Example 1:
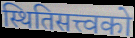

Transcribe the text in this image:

स्थितिसत्त्वको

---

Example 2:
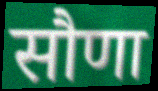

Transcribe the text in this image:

सौणा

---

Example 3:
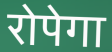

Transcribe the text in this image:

रोपेगा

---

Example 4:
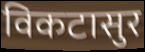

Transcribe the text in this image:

विकटासुर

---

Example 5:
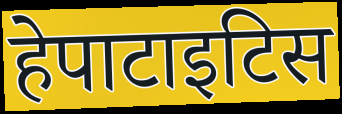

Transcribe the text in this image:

हेपाटाइटिस